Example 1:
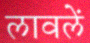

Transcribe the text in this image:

लावलें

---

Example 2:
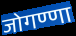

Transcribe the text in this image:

जोगण्णा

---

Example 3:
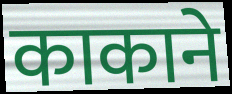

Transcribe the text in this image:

काकाने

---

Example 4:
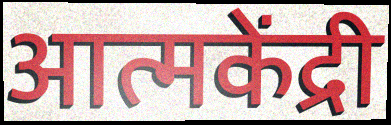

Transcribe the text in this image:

आत्मकेंद्री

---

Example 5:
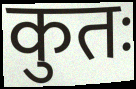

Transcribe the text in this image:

कुतः